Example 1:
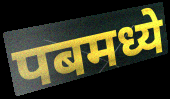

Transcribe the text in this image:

पबमध्ये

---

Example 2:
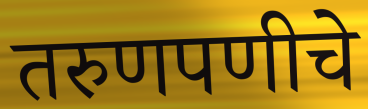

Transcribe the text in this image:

तरुणपणीचे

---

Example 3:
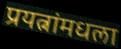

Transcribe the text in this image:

प्रयत्नांमधला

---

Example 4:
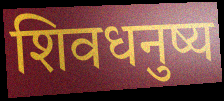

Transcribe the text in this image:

शिवधनुष्य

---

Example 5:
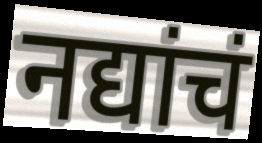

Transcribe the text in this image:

नद्यांचं